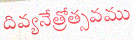
దివ్యనేత్రోత్సవము